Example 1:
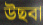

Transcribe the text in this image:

উছবা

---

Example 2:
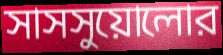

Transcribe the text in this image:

সাসসুয়োলোর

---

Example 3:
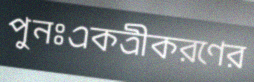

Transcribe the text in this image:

পুনঃএকত্রীকরণের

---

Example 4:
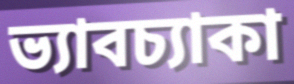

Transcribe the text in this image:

ভ্যাবচ্যাকা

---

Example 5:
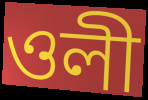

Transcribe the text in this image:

ওলী